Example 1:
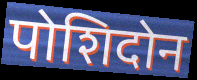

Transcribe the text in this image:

पोशिदोन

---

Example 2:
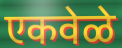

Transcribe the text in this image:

एकवेळे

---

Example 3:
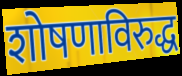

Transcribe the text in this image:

शोषणाविरुद्ध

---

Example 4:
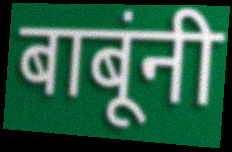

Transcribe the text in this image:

बाबूंनी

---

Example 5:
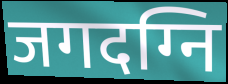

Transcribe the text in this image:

जगदग्नि